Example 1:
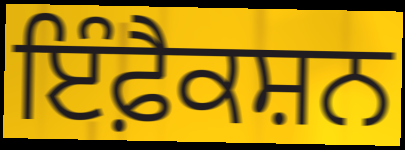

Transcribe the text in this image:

ਇੰਫ਼ੈਕਸ਼ਨ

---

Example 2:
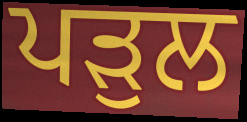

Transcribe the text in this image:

ਪੜੁਲ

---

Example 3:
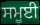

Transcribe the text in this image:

ਸਮੂਈ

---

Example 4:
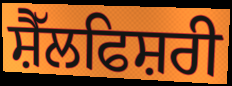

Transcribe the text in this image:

ਸ਼ੈੱਲਫਿਸ਼ਰੀ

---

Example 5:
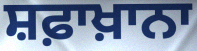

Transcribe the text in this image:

ਸ਼ਫ਼ਾਖ਼ਾਨਾ